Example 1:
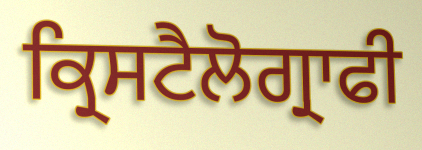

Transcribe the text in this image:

ਕ੍ਰਿਸਟੈਲੋਗ੍ਰਾਫੀ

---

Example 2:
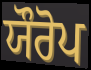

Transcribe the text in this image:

ਯੌਰੋਪ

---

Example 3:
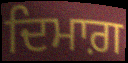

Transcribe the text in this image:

ਦਿਮਾਗ਼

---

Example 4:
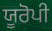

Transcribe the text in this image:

ਯੂਰੋਪੀ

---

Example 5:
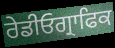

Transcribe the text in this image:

ਰੇਡੀਓਗ੍ਰਾਫਿਕ